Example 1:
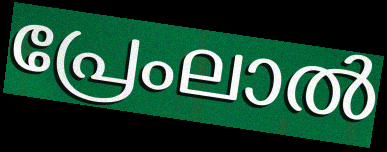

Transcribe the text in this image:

പ്രേംലാൽ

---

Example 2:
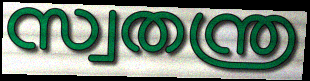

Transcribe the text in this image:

സ്വതന്ത്ര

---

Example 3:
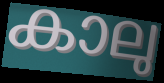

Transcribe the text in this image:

കാലു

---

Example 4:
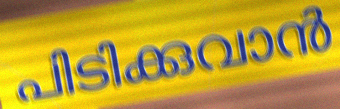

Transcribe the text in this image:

പിടിക്കുവാൻ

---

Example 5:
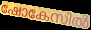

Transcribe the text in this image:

ഷോകേസിൽ